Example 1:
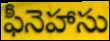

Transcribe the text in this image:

ఫీనెహాసు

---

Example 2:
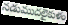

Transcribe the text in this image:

నడుముదలైకుళం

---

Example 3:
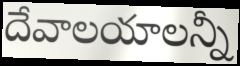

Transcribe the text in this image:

దేవాలయాలన్నీ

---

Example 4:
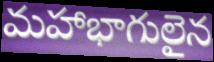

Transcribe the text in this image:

మహాభాగులైన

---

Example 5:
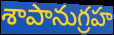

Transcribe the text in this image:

శాపానుగ్రహ